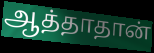
ஆத்தாதான்